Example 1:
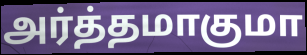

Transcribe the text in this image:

அர்த்தமாகுமா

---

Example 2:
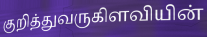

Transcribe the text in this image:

குறித்துவருகிளவியின்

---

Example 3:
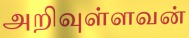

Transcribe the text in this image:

அறிவுள்ளவன்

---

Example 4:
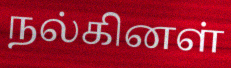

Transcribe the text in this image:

நல்கினள்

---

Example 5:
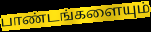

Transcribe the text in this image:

பாண்டங்களையும்